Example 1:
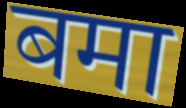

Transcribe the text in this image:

बमा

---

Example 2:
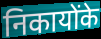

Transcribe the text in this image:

निकायोंके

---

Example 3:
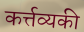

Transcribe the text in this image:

कर्त्तव्यकी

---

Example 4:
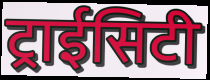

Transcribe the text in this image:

ट्राईसिटी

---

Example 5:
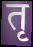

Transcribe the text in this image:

तृ